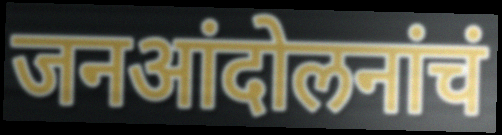
जनआंदोलनांचं